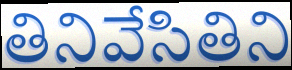
తినివేసితిని